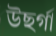
উছৰ্গা